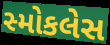
સ્મોકલેસ